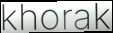
khorak